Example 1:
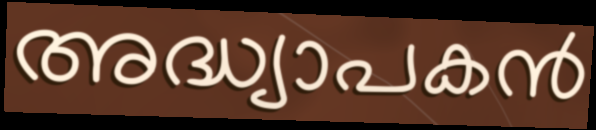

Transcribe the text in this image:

അദ്ധ്യാപകൻ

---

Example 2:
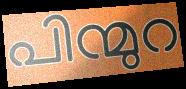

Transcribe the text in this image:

പിന്മുറ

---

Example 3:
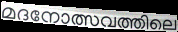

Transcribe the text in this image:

മദനോത്സവത്തിലെ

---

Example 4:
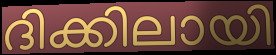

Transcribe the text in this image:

ദിക്കിലായി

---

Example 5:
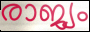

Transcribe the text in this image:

രാജ്യം